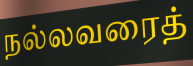
நல்லவரைத்